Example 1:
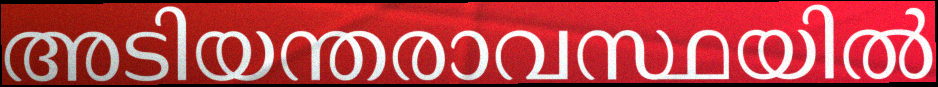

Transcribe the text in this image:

അടിയന്തരാവസ്ഥയിൽ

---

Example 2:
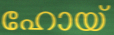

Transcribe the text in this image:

ഹോയ്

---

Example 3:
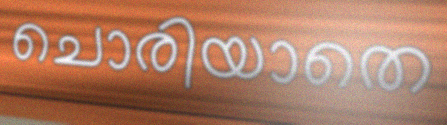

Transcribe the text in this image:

ചൊരിയാതെ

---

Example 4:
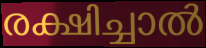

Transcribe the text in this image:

രക്ഷിച്ചാൽ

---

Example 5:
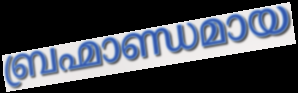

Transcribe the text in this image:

ബ്രഹ്മാണ്ഡമായ